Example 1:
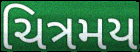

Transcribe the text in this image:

ચિત્રમય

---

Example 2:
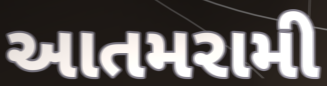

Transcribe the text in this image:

આતમરામી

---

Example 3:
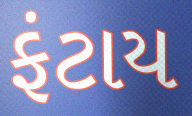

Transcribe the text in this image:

ફંટાય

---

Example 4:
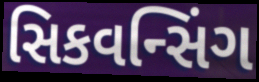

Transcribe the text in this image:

સિકવન્સિંગ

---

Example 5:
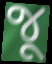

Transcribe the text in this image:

જૂ